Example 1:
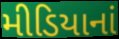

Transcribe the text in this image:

મીડિયાનાં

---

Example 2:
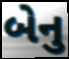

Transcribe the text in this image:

બેનુ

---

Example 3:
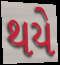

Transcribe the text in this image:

થયે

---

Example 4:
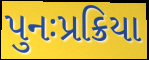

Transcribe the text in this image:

પુનઃપ્રક્રિયા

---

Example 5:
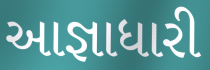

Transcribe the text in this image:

આજ્ઞાધારી